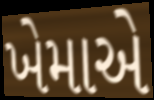
ખેમાએ